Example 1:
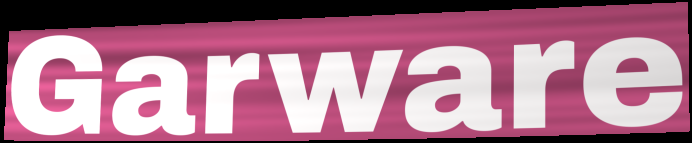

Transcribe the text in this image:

Garware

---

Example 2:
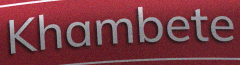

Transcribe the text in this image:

Khambete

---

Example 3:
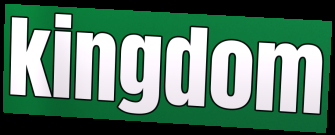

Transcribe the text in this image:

kingdom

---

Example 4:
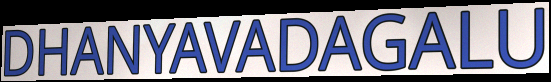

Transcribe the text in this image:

DHANYAVADAGALU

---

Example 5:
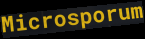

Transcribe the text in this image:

Microsporum